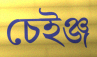
চেইঞ্জ